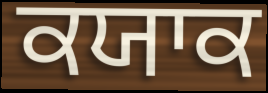
ਕਯਾਕ